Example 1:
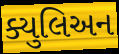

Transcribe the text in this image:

ક્યુલિઅન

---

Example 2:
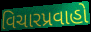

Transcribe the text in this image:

વિચારપ્રવાહો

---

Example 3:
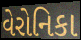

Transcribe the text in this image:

વેરોનિકા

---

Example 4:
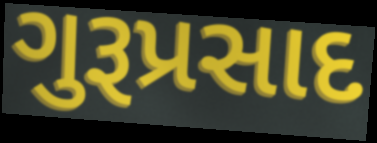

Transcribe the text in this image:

ગુરૂપ્રસાદ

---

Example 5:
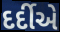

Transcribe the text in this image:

દર્દીએ